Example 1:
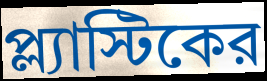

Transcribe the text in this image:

প্ল্যাস্টিকের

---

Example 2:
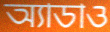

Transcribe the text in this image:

অ্যাডাও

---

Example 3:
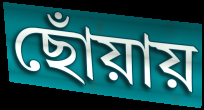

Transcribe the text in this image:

ছোঁয়ায়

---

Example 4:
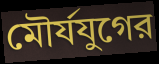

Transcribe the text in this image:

মৌর্যযুগের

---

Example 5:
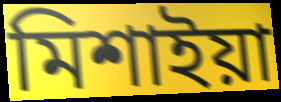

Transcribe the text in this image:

মিশাইয়া